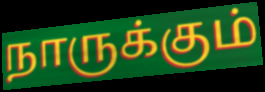
நாருக்கும்